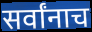
सर्वांनाच